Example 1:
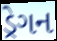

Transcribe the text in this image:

ડ્રેગન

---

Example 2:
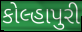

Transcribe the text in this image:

કોલ્હાપુરી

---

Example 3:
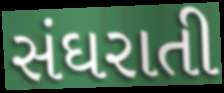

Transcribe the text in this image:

સંઘરાતી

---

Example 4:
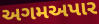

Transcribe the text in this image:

અગમઅપાર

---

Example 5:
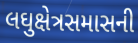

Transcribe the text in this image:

લઘુક્ષેત્રસમાસની